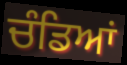
ਚੰਡਿਆਂ